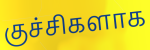
குச்சிகளாக